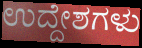
ಉದ್ದೇಶಗಳು